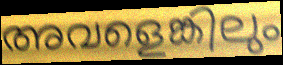
അവളെങ്കിലും